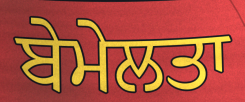
ਬੇਮੇਲਤਾ